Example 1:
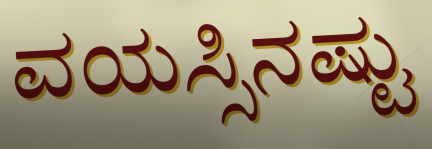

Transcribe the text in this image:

ವಯಸ್ಸಿನಷ್ಟು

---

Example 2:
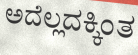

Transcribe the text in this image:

ಅದೆಲ್ಲದಕ್ಕಿಂತ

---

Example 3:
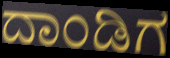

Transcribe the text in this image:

ದಾಂಡಿಗ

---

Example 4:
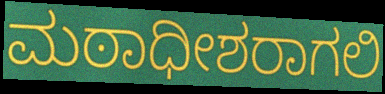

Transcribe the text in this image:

ಮಠಾಧೀಶರಾಗಲಿ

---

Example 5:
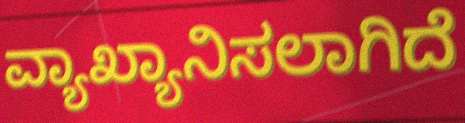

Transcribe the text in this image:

ವ್ಯಾಖ್ಯಾನಿಸಲಾಗಿದೆ